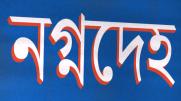
নগ্নদেহ